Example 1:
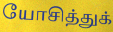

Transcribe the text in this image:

யோசித்துக்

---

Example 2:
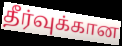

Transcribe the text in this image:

தீர்வுக்கான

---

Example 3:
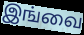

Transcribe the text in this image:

இங்வை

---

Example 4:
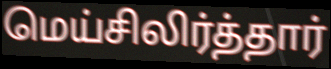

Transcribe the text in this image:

மெய்சிலிர்த்தார்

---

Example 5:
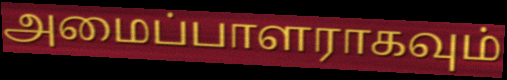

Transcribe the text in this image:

அமைப்பாளராகவும்